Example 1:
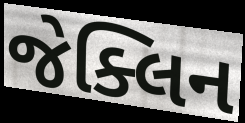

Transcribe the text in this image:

જેક્લિન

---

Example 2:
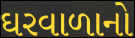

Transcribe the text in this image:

ઘરવાળાનો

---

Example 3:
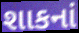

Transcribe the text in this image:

શાકનાં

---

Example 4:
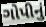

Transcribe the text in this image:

ગોપીનું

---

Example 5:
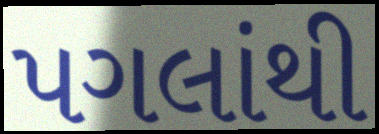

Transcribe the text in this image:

પગલાંથી